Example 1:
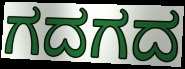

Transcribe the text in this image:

ಗದಗದ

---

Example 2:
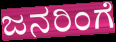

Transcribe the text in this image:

ಜನರಿಂಗೆ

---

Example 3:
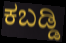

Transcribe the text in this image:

ಕಬಡ್ಡಿ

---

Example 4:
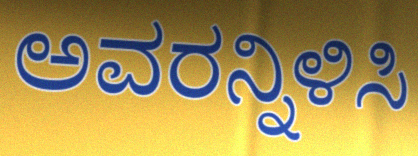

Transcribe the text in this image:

ಅವರನ್ನಿಳಿಸಿ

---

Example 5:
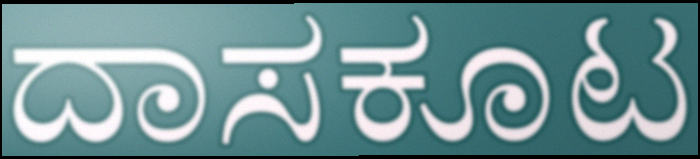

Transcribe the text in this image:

ದಾಸಕೂಟ